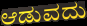
ಆಡುವದು